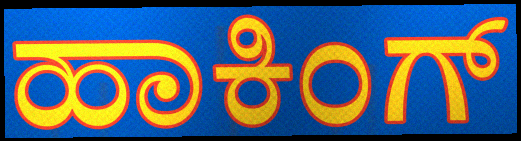
ಹಾಕಿಂಗ್